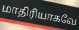
மாதிரியாகவே